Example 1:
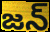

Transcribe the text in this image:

జన్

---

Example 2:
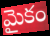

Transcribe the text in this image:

మైకం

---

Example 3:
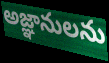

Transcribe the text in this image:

అజ్ఞానులను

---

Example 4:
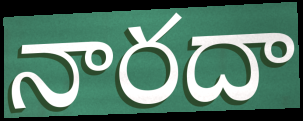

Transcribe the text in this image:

నారదా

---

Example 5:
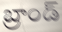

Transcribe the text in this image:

బ్రాండ్